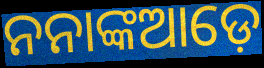
ନନାଙ୍କଆଡ଼େ